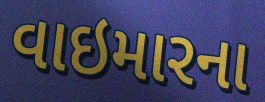
વાઇમારના